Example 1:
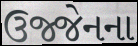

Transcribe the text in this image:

ઉજ્જેનના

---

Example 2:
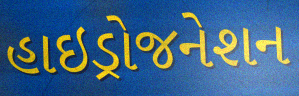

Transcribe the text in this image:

હાઇડ્રોજનેશન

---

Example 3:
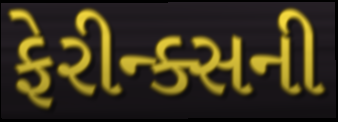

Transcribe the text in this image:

ફેરીન્ક્સની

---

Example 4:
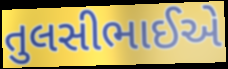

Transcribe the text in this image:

તુલસીભાઈએ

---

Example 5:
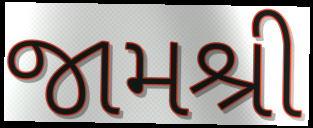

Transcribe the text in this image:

જામશ્રી